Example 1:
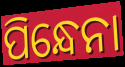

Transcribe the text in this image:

ପିନ୍ଧେନା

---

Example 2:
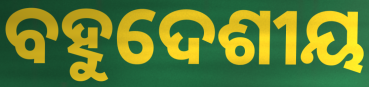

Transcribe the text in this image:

ବହୁଦେଶୀୟ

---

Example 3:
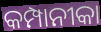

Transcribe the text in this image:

କମ୍ପାନୀକା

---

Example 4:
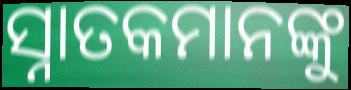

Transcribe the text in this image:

ସ୍ନାତକମାନଙ୍କୁ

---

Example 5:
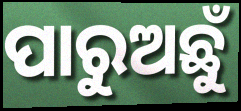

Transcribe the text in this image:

ପାରୁଅଛୁଁ